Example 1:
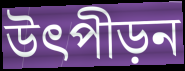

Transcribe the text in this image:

উৎপীড়ন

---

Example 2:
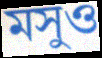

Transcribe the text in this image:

মসুও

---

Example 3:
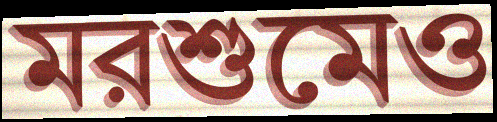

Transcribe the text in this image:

মরশুমেও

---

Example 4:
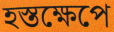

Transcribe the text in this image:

হস্তক্ষেপে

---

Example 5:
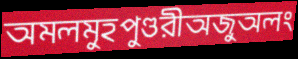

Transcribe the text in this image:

অমলমুহপুণ্ডরীঅজুঅলং